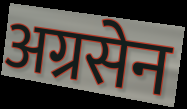
अग्रसेन